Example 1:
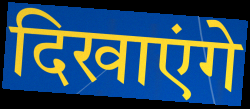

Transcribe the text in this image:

दिखाएंगे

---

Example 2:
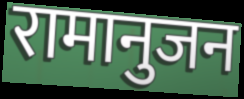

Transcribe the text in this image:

रामानुजन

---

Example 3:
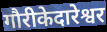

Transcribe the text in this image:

गौरीकेदारेश्वर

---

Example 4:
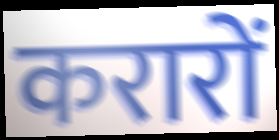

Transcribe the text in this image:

करारों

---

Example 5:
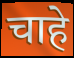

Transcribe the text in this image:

चाहे